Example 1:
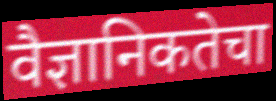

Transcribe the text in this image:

वैज्ञानिकतेचा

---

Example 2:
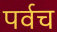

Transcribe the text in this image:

पर्वच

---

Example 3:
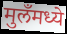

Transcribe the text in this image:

मुलँमध्ये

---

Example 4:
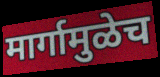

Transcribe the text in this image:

मार्गामुळेच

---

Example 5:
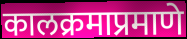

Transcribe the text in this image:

कालक्रमाप्रमाणे